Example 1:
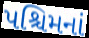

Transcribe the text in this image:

પશ્ચિમનાં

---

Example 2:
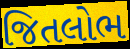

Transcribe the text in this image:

જિતલોભ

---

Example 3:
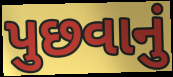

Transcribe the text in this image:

પુછવાનું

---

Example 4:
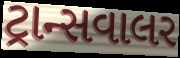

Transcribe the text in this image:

ટ્રાન્સવાલર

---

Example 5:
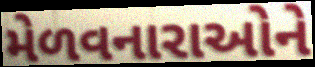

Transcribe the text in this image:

મેળવનારાઓને